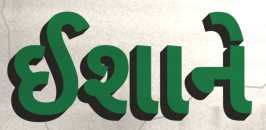
ઈશાને